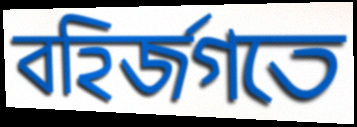
বহির্জগতে